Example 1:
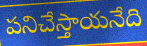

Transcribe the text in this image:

పనిచేస్తాయనేది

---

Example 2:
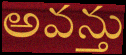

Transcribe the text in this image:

అవన్తు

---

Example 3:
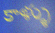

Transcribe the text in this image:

కాళ్ళు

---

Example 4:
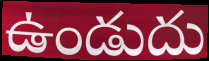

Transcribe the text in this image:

ఉండుదు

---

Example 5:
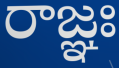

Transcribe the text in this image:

రాజ్ఞః